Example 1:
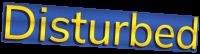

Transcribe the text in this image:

Disturbed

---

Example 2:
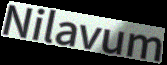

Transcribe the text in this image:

Nilavum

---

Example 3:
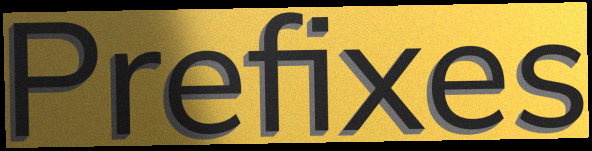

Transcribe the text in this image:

Prefixes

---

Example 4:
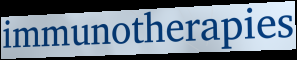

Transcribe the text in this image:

immunotherapies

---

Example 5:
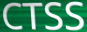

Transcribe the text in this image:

CTSS